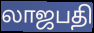
லாஜபதி